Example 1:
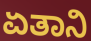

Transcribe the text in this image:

ಏತಾನಿ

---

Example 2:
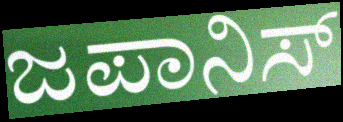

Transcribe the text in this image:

ಜಪಾನಿಸ್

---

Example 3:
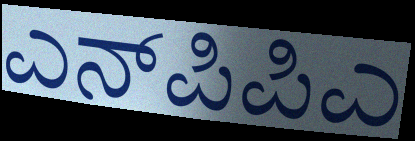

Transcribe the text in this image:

ಎನ್‌ಪಿಪಿಎ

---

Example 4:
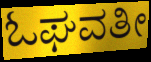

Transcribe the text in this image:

ಓಘವತೀ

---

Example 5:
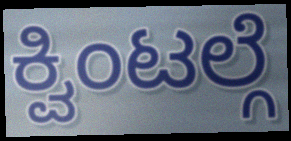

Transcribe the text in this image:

ಕ್ವಿಂಟಲ್ಗೆ